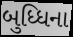
બુધ્ધિના